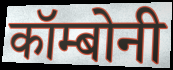
कॉम्बोनी